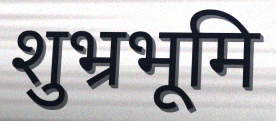
शुभ्रभूमि